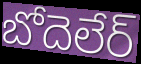
బోదెలేర్